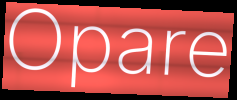
Opare